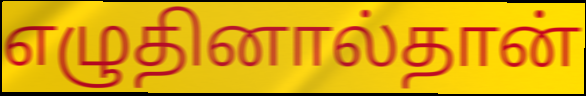
எழுதினால்தான்